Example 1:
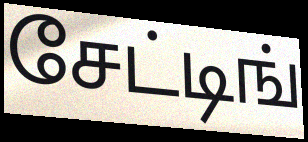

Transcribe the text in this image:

சேட்டிங்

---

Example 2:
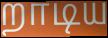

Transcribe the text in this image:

றாடிய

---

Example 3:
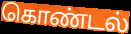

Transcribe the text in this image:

கொண்டல்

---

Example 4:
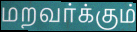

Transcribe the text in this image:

மறவர்க்கும்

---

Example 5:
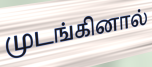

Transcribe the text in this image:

முடங்கினால்